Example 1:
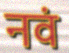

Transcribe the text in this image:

नवं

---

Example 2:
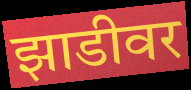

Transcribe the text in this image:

झाडीवर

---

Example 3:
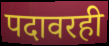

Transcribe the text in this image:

पदावरही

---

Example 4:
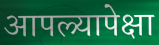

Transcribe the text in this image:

आपल्यापेक्षा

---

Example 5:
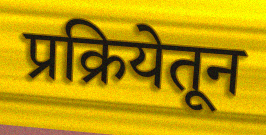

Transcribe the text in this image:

प्रक्रियेतून